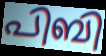
പിബി